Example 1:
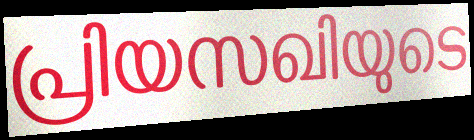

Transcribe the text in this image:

പ്രിയസഖിയുടെ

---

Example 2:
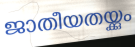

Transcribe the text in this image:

ജാതീയതയ്ക്കും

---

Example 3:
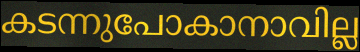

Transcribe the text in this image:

കടന്നുപോകാനാവില്ല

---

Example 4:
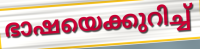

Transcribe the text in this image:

ഭാഷയെക്കുറിച്ച്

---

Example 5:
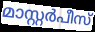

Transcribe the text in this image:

മാസ്റ്റർപീസ്